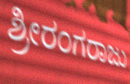
ಶ್ರೀರಂಗರಾಜು